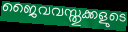
ജൈവവസ്തുക്കളുടെ